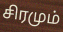
சிரமும்